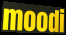
moodi